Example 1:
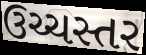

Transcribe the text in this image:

ઉચ્ચસ્તર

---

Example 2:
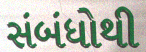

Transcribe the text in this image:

સંબંધોથી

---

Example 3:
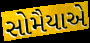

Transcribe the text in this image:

સોમૈયાએ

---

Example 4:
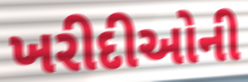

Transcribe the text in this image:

ખરીદીઓની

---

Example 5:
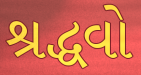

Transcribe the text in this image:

શ્રદ્ધવો